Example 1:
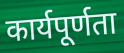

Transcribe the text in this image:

कार्यपूर्णता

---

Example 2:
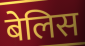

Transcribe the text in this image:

बेलिस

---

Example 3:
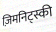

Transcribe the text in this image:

ज़िमनिट्स्की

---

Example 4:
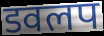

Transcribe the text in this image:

डवलप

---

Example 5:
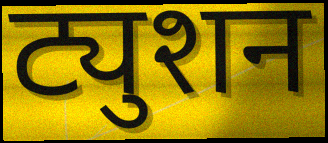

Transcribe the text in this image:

ट्युशन